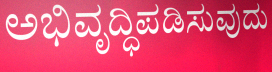
ಅಭಿವೃದ್ಧಿಪಡಿಸುವುದು